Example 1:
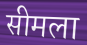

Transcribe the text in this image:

सीमला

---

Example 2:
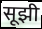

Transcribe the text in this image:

सूझी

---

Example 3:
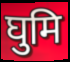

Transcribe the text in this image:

घुमि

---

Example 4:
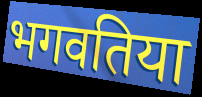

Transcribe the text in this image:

भगवतिया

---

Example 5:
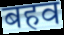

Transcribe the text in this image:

बहव